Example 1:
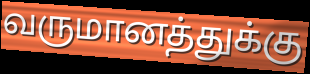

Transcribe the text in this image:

வருமானத்துக்கு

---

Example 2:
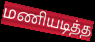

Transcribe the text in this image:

மணியடித்த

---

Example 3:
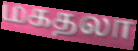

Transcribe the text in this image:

மகதலா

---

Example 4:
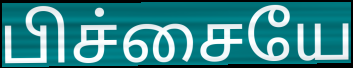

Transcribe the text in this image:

பிச்சையே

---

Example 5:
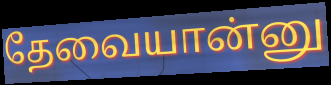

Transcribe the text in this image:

தேவையான்னு